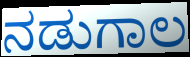
ನಡುಗಾಲ